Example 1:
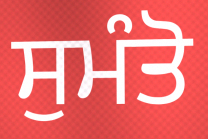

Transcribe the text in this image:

ਸੁਮੰਤੋ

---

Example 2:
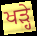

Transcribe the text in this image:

ਖਡ਼੍ਹੇ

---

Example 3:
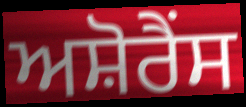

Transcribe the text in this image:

ਅਸ਼ੋਰੈਂਸ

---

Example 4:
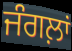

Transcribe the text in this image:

ਜੰਗਲ਼ਾਂ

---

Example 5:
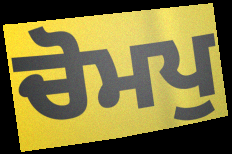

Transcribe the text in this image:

ਚੋਮਪੁ